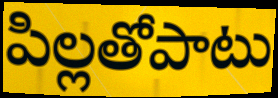
పిల్లతోపాటు